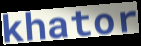
khator